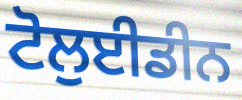
ਟੋਲੁਈਡੀਨ